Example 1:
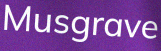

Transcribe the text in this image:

Musgrave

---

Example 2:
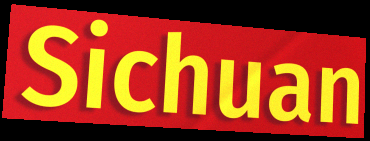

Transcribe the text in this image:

Sichuan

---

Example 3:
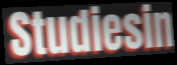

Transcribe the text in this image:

Studiesin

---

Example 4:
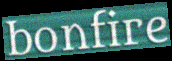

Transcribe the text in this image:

bonfire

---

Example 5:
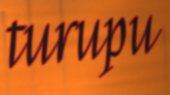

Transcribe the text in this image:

turupu